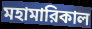
মহামারিকাল